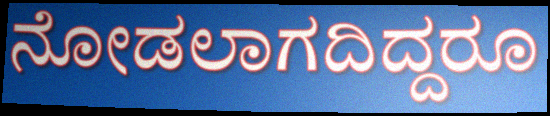
ನೋಡಲಾಗದಿದ್ದರೂ